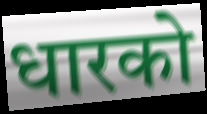
धारको